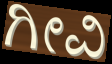
ಗೀವಿ